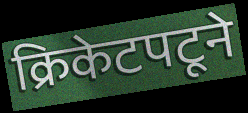
क्रिकेटपटूने